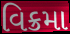
વિક્રમા